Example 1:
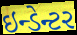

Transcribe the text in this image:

ઇન્ડેન્ટર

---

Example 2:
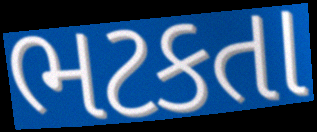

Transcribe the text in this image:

ભટકતા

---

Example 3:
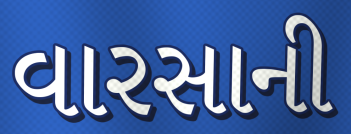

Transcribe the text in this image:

વારસાની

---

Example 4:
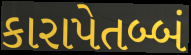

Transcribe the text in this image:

કારાપેતબ્બં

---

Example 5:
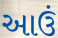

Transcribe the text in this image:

આઉં